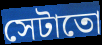
সেটাতো